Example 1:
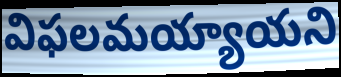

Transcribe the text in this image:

విఫలమయ్యాయని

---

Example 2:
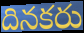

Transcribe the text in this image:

దినకరు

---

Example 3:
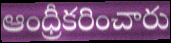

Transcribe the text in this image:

ఆంధ్రీకరించారు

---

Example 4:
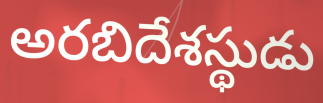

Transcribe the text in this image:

అరబిదేశస్థుడు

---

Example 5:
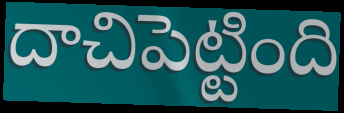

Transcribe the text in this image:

దాచిపెట్టింది